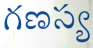
గణస్య